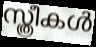
സ്ത്രീകൾ